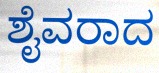
ಶೈವರಾದ